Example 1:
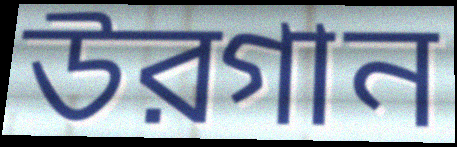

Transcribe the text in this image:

উরগান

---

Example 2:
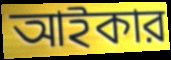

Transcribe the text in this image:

আইকার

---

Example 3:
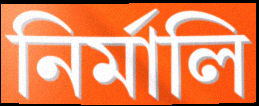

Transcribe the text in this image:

নির্মালি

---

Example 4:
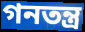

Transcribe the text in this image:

গনতন্ত্র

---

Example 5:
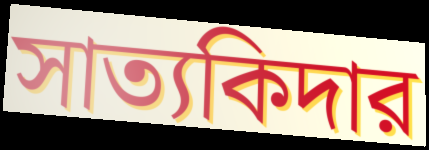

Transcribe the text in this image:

সাত্যকিদার